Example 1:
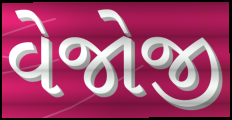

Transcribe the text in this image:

વેજોજી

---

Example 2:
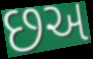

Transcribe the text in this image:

છઅ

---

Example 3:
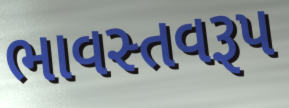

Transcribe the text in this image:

ભાવસ્તવરૂપ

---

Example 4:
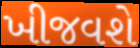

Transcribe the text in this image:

ખીજવશે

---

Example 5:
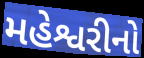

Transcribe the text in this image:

મહેશ્વરીનો